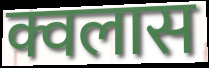
क्वलास